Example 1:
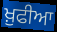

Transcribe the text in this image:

ਖ਼ੁਫੀਆ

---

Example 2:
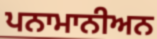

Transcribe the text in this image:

ਪਨਾਮਾਨੀਅਨ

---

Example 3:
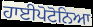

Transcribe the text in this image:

ਹਾਈਪੋਟੋਨਿਆ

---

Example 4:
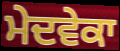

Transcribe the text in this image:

ਮੇਦਵੇਕਾ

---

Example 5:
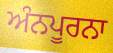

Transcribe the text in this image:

ਅੰਨਪੂਰਨਾ